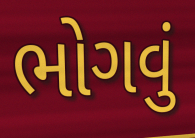
ભોગવું